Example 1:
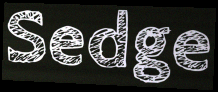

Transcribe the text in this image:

Sedge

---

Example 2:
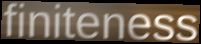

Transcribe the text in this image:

finiteness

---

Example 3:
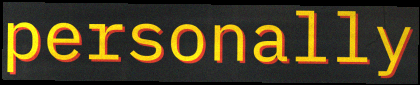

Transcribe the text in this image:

personally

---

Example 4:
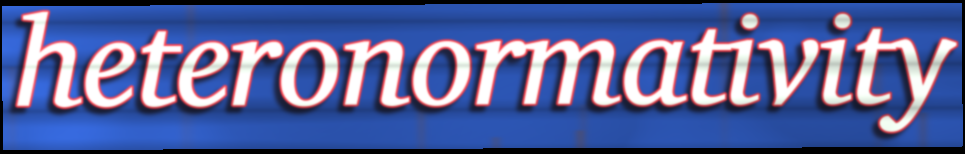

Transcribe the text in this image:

heteronormativity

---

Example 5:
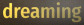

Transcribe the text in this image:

dreaming